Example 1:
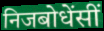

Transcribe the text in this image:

निजबोधेंसीं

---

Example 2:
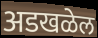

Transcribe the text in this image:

अडखळेल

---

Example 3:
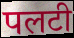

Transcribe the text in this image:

पलटी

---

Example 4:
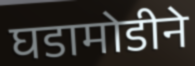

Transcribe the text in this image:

घडामोडीने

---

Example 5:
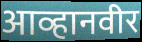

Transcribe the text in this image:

आव्हानवीर